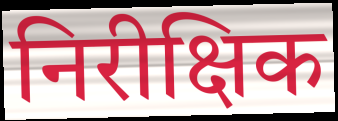
निरीक्षिक